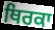
ਥਿਰਕਾ